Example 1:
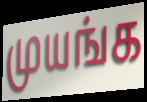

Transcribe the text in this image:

முயங்க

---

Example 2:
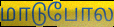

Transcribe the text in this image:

மாடுபோல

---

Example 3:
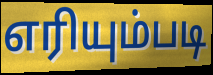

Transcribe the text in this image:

எரியும்படி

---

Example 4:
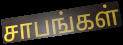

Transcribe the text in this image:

சாபங்கள்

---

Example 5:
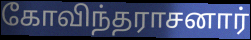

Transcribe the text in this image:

கோவிந்தராசனார்